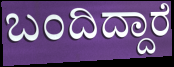
ಬಂದಿದ್ದಾರೆ